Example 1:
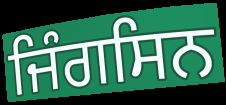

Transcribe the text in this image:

ਜਿੰਗਸਿਨ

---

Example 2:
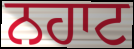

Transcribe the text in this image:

ਨਹਾਟ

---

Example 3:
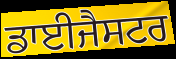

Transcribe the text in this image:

ਡਾਈਜੈਸਟਰ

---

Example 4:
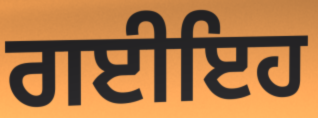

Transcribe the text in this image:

ਗਈਇਹ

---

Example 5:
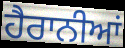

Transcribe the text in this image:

ਹੈਰਾਨੀਆਂ